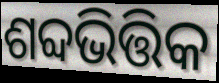
ଶବ୍ଦଭିତ୍ତିକ